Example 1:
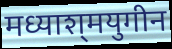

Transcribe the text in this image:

मध्याश्मयुगीन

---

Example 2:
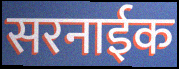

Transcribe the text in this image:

सरनाईक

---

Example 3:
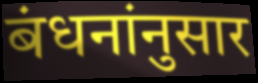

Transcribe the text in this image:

बंधनांनुसार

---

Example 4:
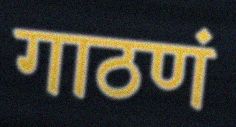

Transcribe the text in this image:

गाठणं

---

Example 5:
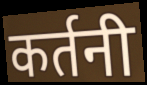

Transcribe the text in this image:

कर्तनी